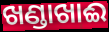
ଖଣ୍ଡାଖାଈ